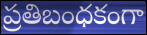
ప్రతిబంధకంగా